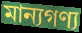
মান্যগণ্য